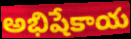
అభిషేకాయ